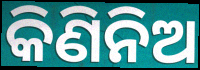
କିଣିନିଅ